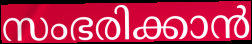
സംഭരിക്കാൻ